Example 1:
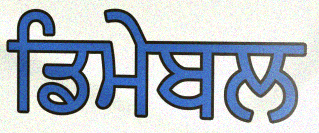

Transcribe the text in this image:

ਡਿਮੇਬਲ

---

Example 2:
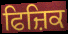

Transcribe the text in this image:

ਫਿਜ਼ਿਕ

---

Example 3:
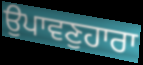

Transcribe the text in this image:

ਉਪਾਵਣੁਹਾਰਾ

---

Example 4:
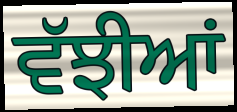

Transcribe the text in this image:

ਵੱਝੀਆਂ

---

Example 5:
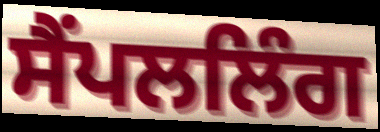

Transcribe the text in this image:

ਸੈਂਪਲਲਿੰਗ